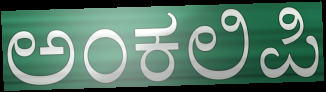
ಅಂಕಲಿಪಿ